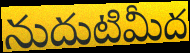
నుదుటిమీద